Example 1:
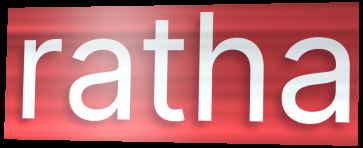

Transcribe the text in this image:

ratha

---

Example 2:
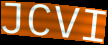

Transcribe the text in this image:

JCVI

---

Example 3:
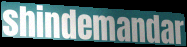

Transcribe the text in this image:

shindemandar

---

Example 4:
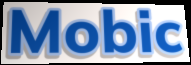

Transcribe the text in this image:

Mobic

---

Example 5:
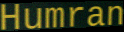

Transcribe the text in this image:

Humran